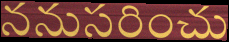
ననుసరించు